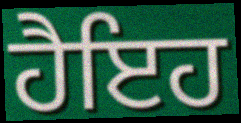
ਹੈਇਹ